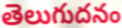
తెలుగుదనం